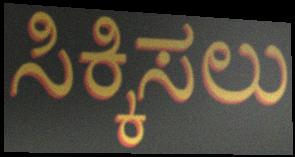
ಸಿಕ್ಕಿಸಲು